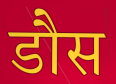
डौस